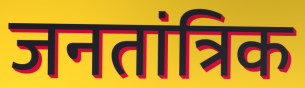
जनतांत्रिक